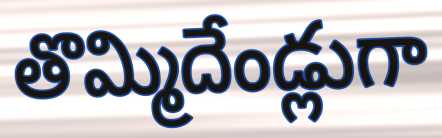
తొమ్మిదేండ్లుగా